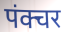
पंक्चर